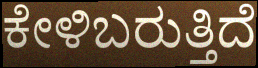
ಕೇಳಿಬರುತ್ತಿದೆ